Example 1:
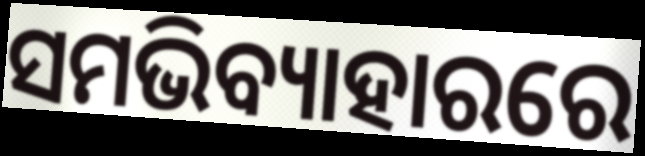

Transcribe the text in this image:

ସମଭିବ୍ୟାହାରରେ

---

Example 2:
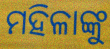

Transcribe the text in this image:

ମହିଳାଙ୍କୁ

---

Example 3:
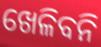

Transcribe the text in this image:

ଖେଳିବନି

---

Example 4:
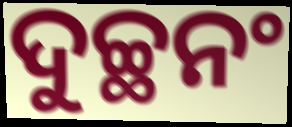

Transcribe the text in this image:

ଦୁଚ୍ଛନଂ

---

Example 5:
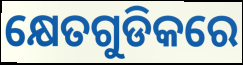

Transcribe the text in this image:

କ୍ଷେତଗୁଡିକରେ